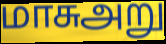
மாசுஅறு